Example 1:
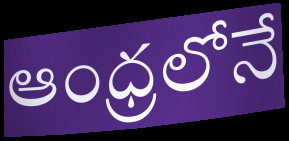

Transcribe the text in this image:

ఆంధ్రలోనే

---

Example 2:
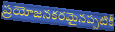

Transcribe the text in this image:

ప్రయోజనకరమైనప్పటికీ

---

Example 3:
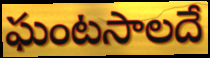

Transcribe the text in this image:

ఘంటసాలదే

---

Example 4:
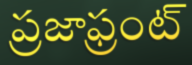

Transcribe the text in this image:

ప్రజాఫ్రంట్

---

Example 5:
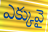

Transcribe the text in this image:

ఎక్కువై